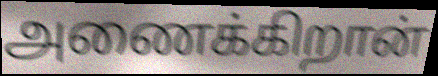
அணைக்கிறான்